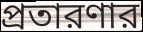
প্রতারণার